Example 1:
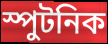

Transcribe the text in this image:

স্পুটনিক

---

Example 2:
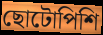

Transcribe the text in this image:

ছোটোপিশি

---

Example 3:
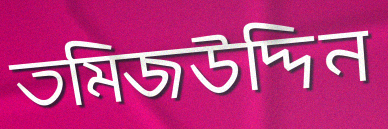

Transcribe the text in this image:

তমিজউদ্দিন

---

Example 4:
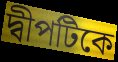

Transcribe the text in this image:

দ্বীপটিকে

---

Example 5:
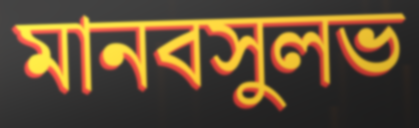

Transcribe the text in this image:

মানবসুলভ